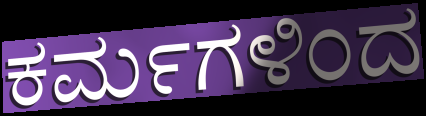
ಕರ್ಮಗಳಿಂದ